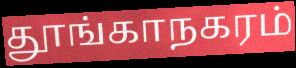
தூங்காநகரம்